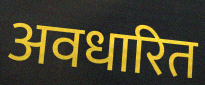
अवधारित